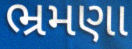
ભ્રમણા